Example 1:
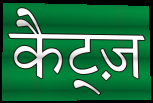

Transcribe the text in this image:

कैट्ज़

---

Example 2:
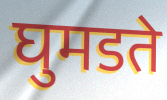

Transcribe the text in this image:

घुमडते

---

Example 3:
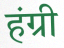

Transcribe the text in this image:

हंग्री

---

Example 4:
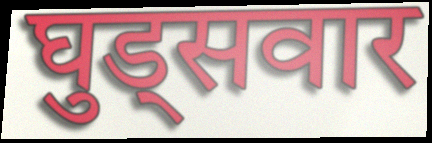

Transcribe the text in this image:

घुड्सवार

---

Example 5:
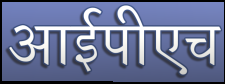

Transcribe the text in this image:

आईपीएच